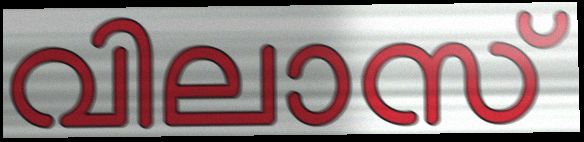
വിലാസ്